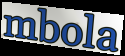
mbola